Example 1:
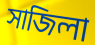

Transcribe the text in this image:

সাজিলা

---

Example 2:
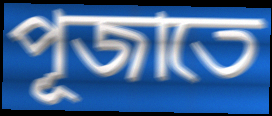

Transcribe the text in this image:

পূজাতে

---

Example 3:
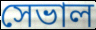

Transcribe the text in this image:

সেভাল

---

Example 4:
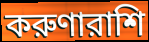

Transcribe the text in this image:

করুণারাশি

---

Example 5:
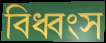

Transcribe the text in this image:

বিধ্বংস